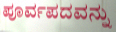
ಪೂರ್ವಪದವನ್ನು